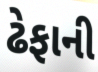
ઢેફાની